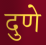
दुणे